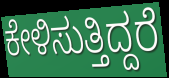
ಕೇಳಿಸುತ್ತಿದ್ದರೆ